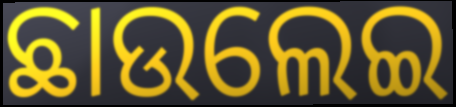
ଛାଉଲେଇ